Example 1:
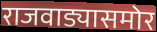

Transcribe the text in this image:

राजवाड्यासमोर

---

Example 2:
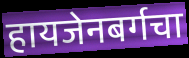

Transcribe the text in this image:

हायजेनबर्गचा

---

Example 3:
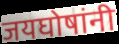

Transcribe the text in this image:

जयघोषांनी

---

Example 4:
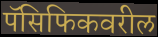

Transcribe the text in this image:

पॅसिफिकवरील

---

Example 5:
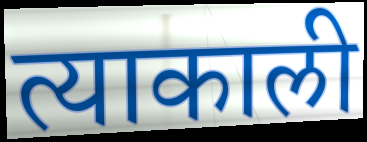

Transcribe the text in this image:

त्याकाली